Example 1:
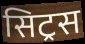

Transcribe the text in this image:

सिट्रस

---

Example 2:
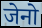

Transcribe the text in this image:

जेनो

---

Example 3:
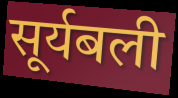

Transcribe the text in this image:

सूर्यबली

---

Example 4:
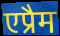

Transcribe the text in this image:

एप्रैम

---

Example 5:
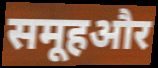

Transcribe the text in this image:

समूहऔर